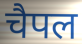
चैपल